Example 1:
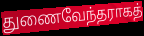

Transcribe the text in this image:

துணைவேந்தராகத்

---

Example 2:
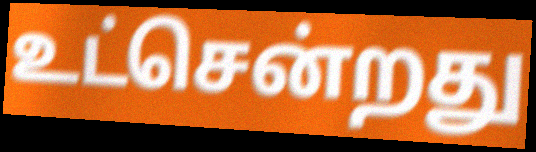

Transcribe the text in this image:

உட்சென்றது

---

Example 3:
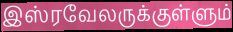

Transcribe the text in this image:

இஸ்ரவேலருக்குள்ளும்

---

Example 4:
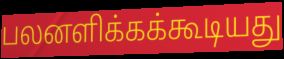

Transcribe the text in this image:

பலனளிக்கக்கூடியது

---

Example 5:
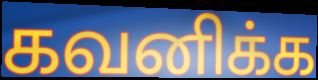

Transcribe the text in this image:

கவனிக்க